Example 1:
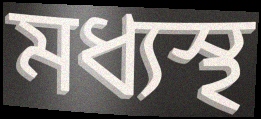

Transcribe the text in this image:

মধ্যস্থ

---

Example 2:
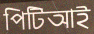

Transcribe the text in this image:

পিটিআই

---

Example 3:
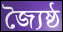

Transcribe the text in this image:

জ্যৈষ্ঠ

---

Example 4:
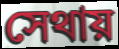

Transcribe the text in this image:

সেথায়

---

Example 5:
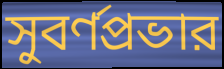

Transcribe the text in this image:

সুবর্ণপ্রভার